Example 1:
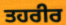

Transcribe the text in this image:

ਤਹਰੀਰ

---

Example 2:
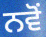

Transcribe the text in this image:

ਨਵੋਂ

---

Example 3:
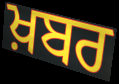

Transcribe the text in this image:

ਖ਼ਬਰ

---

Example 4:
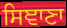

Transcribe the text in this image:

ਸਿਞਾਣਾ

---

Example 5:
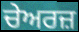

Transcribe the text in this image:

ਚੇਅਰਜ਼